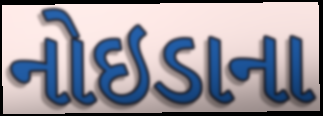
નોઇડાના